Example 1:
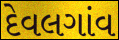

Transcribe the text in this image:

દેવલગાંવ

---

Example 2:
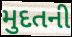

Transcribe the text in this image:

મુદતની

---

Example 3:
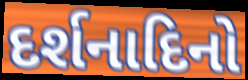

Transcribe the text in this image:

દર્શનાદિનો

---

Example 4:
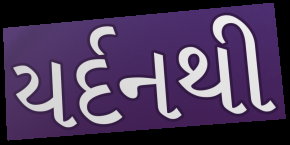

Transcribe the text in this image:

યર્દનથી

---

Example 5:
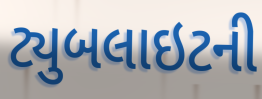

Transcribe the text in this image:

ટ્યુબલાઇટની